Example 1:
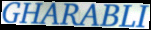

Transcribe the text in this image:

GHARABLI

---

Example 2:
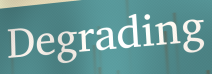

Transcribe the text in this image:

Degrading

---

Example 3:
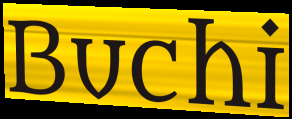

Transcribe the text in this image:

Buchi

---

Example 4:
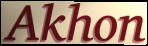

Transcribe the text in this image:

Akhon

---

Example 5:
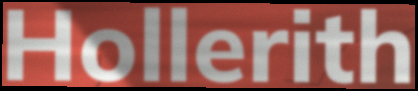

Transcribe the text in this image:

Hollerith